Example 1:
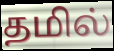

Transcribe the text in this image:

தமில்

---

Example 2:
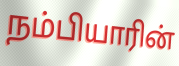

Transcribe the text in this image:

நம்பியாரின்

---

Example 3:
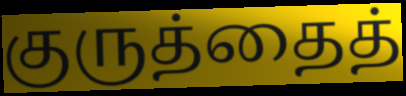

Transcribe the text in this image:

குருத்தைத்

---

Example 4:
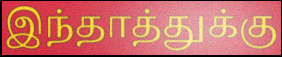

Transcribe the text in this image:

இந்தாத்துக்கு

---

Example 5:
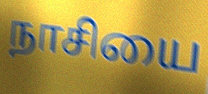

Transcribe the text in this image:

நாசியை